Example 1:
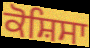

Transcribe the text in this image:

ਕੋਸ਼ਿਸਾ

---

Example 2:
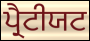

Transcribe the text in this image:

ਪ੍ਰੈਟੀਯਟ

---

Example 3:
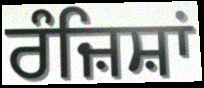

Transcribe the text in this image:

ਰੰਜ਼ਿਸ਼ਾਂ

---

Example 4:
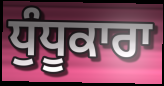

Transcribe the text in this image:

ਧੁੰਧੂਕਾਰਾ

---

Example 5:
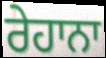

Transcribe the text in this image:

ਰੇਹਾਨਾ